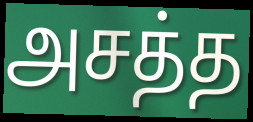
அசத்த